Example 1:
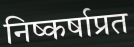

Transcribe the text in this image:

निष्कर्षाप्रत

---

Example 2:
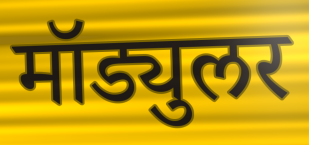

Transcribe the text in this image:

मॉड्युलर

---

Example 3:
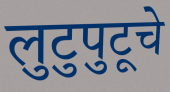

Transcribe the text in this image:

लुटुपुटूचे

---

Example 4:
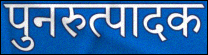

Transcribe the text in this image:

पुनरुत्पादक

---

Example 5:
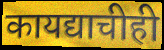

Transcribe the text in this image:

कायद्याचीही